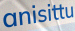
anisittu